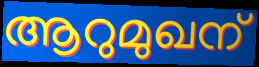
ആറുമുഖന്